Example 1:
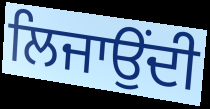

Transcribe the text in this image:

ਲਿਜਾਉਂਦੀ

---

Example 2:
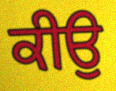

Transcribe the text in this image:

ਕੀਉ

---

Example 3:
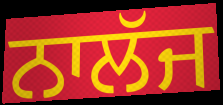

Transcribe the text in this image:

ਨਾਲੱਜ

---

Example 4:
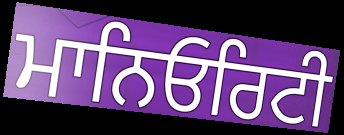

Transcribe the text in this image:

ਮਾਨਿਓਰਿਟੀ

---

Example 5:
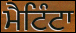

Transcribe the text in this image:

ਮੈਟਿੰਟਾ